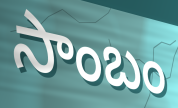
సాంబం